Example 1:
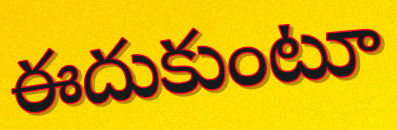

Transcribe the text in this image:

ఈదుకుంటూ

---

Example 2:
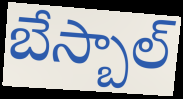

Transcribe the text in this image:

బేస్బాల్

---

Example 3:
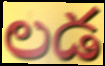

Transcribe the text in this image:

లడ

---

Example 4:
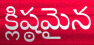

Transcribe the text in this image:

క్లిష్ఠమైన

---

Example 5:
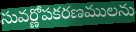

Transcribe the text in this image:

సువర్ణోపకరణములను